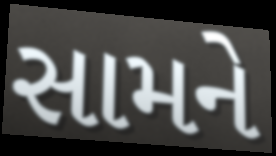
સામને